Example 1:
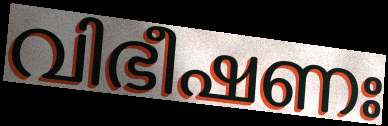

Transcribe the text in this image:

വിഭീഷണഃ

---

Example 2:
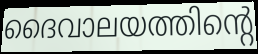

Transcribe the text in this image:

ദൈവാലയത്തിന്റെ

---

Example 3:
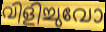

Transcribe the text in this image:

വിളിച്ചുവോ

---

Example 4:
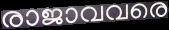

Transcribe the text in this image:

രാജാവവരെ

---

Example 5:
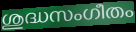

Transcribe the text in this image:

ശുദ്ധസംഗീതം